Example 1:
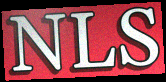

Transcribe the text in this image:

NLS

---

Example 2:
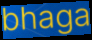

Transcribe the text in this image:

bhaga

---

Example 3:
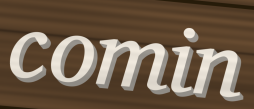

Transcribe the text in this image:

comin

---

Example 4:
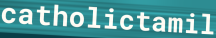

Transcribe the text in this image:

catholictamil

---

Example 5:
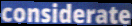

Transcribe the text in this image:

considerate